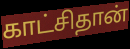
காட்சிதான்